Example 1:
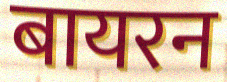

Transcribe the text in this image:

बायरन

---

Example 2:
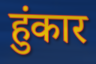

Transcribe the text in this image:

हुंकार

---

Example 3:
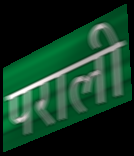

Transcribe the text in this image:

पराली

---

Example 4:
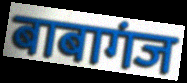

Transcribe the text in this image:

बाबागंज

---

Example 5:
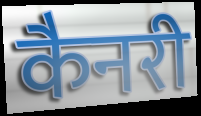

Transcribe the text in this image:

कैनरी